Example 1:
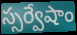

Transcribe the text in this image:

స్సర్వేషాం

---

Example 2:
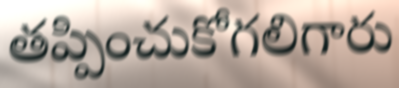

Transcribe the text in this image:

తప్పించుకోగలిగారు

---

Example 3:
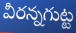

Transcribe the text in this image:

వీరన్నగుట్ట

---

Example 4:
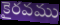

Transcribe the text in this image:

కైరవము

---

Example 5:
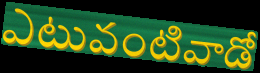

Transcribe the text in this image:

ఎటువంటివాడో